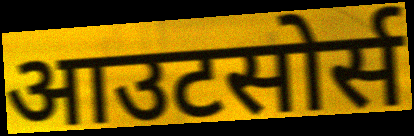
आउटसोर्स